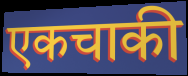
एकचाकी